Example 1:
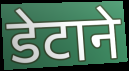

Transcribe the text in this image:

डेटाने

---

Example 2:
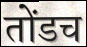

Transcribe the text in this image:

तोंडच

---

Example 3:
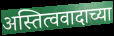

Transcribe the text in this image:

अस्तित्ववादाच्या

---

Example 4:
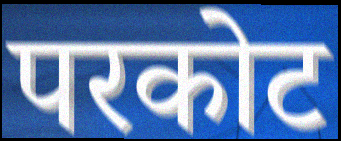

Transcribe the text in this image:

परकोट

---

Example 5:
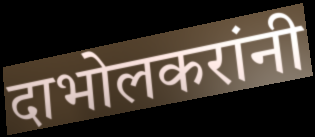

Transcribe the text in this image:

दाभोलकरांनी